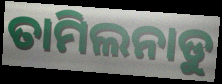
ତାମିଲନାଡୁ